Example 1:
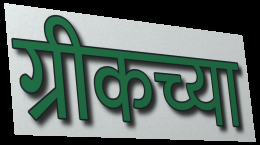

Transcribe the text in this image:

ग्रीकच्या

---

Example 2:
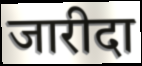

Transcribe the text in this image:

जारीदा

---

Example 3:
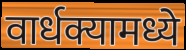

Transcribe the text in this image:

वार्धक्यामध्ये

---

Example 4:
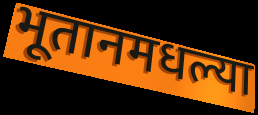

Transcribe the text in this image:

भूतानमधल्या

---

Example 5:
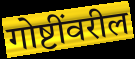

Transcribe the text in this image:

गोष्टींवरील